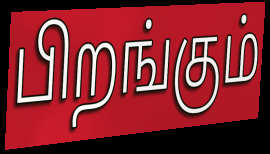
பிறங்கும்